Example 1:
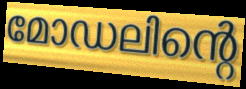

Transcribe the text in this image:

മോഡലിന്റെ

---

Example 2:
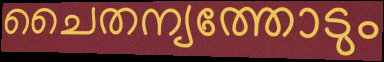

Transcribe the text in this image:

ചൈതന്യത്തോടും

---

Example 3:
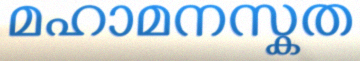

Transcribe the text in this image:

മഹാമനസ്കത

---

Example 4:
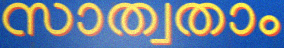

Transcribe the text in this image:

സാത്വതാം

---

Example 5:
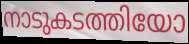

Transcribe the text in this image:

നാടുകടത്തിയോ